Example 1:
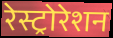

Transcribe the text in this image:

रेस्ट्रोरेशन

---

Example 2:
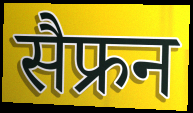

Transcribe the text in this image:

सैफ्रन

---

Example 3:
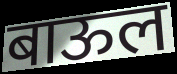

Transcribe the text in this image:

बाऊल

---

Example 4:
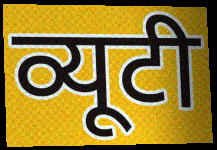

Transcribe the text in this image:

व्यूटी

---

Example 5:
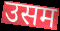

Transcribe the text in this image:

उसम